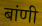
बांणी